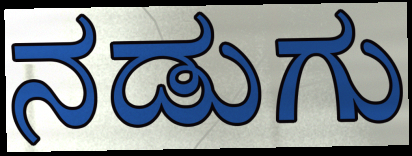
ನಡುಗು